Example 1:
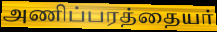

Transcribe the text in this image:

அணிப்பரத்தையர்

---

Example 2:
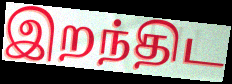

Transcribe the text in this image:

இறந்திட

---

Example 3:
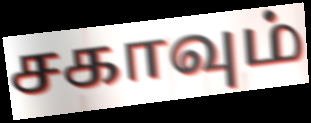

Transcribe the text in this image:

சகாவும்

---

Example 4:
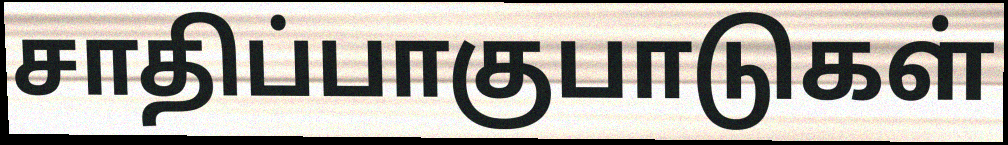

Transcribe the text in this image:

சாதிப்பாகுபாடுகள்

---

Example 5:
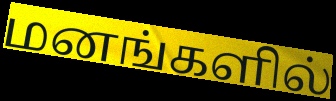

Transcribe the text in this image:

மனங்களில்